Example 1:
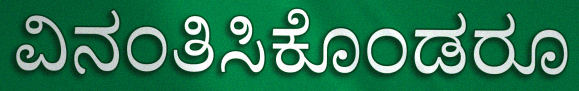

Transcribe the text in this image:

ವಿನಂತಿಸಿಕೊಂಡರೂ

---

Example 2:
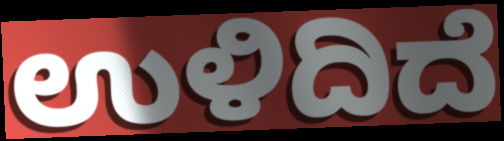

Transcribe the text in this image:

ಉಳಿದಿದೆ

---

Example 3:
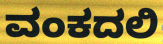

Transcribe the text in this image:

ವಂಕದಲಿ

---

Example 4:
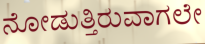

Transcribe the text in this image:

ನೋಡುತ್ತಿರುವಾಗಲೇ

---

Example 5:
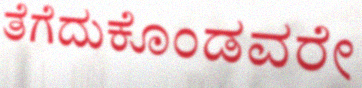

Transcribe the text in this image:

ತೆಗೆದುಕೊಂಡವರೇ